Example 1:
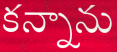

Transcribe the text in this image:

కన్నాను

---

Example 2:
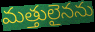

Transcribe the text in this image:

మత్తులైనను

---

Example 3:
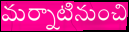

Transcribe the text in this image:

మర్నాటినుంచి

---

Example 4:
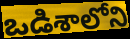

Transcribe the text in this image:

ఒడిశాలోని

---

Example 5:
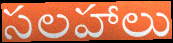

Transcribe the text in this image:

సలహాలు